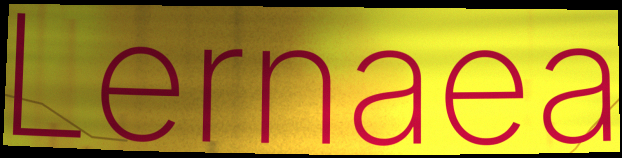
Lernaea